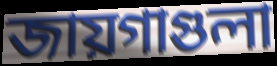
জায়গাগুলা